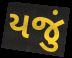
યજું